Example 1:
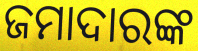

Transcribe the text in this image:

ଜମାଦାରଙ୍କ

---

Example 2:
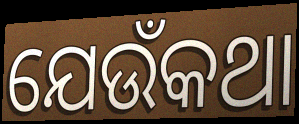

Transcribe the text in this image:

ଯେଉଁକଥା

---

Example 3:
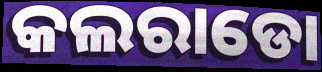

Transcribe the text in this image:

କଲରାଡୋ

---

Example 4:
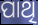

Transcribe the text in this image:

ପାଥି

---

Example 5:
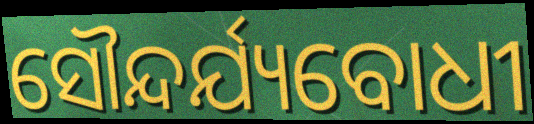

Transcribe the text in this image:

ସୌନ୍ଦର୍ଯ୍ୟବୋଧୀ